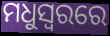
ମଧୁସ୍ୱରରେ